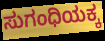
ಸುಗಂಧಿಯಕ್ಕ